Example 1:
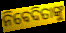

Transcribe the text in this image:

ନିବେଦିତାଙ୍କୁ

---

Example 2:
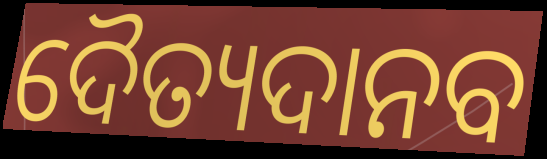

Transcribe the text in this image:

ଦୈତ୍ୟଦାନବ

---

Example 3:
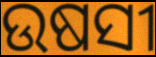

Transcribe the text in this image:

ଉଷସୀ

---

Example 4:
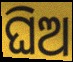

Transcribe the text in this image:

ଘିଅ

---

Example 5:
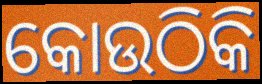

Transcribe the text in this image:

କୋଉଠିକି